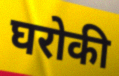
घरोकी